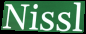
Nissl